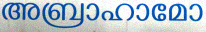
അബ്രാഹാമോ